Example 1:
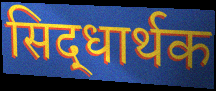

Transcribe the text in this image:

सिद्धार्थक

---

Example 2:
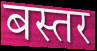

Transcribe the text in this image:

बस्तर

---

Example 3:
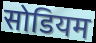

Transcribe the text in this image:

सोडियम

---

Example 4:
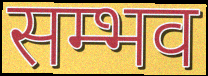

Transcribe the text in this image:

सम्भव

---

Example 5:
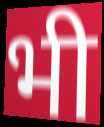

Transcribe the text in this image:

भी